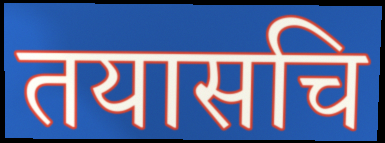
तयासचि